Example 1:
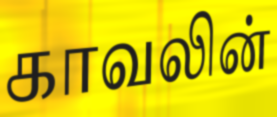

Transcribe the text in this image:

காவலின்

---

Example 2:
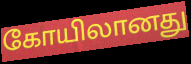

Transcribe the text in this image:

கோயிலானது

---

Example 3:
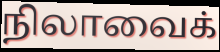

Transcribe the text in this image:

நிலாவைக்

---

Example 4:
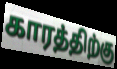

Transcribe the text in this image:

காரத்திற்கு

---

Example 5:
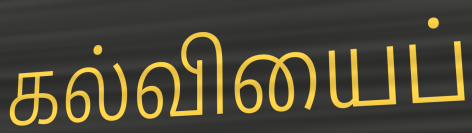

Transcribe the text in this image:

கல்வியைப்